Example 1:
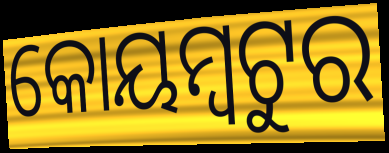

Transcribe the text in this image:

କୋୟମ୍ବଟୁର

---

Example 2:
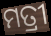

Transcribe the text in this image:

ମତ୍ରୀ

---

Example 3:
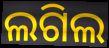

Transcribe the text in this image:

ଲଗିଲ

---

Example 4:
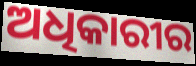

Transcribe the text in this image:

ଅଧିକାରୀର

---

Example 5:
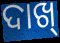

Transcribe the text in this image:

ଦାଖ୍